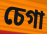
চেগা